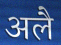
अलै